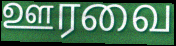
ஊரவை